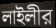
লাইলীর